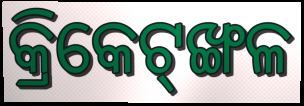
କ୍ରିକେଟ୍‌ଙ୍ଖଳ